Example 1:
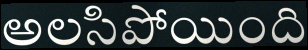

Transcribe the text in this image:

అలసిపోయింది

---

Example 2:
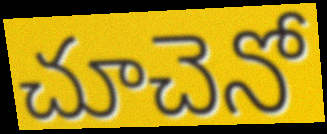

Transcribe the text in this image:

చూచెనో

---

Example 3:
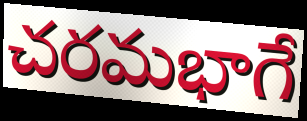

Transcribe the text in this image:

చరమభాగే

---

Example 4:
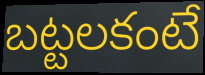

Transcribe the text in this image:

బట్టలకంటే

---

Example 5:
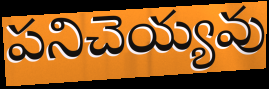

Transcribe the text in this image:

పనిచెయ్యవు